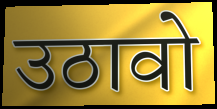
उठावो